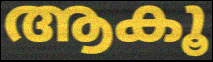
ആകൂ